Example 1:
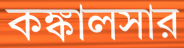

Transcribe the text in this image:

কঙ্কালসার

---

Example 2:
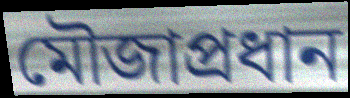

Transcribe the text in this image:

মৌজাপ্রধান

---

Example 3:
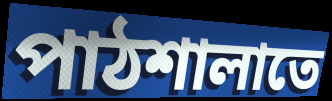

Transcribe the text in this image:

পাঠশালাতে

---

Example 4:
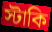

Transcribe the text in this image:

স্টাকি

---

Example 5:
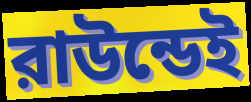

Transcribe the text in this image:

রাউন্ডেই